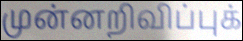
முன்னறிவிப்புக்